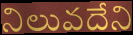
నిలువదేని